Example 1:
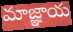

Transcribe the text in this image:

మాజ్ఞాయ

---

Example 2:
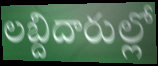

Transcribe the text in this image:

లబ్దిదారుల్లో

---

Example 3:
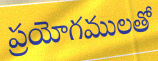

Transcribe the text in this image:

ప్రయోగములతో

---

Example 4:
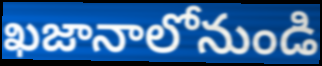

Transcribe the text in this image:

ఖజానాలోనుండి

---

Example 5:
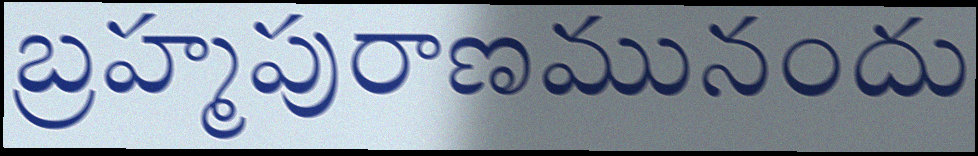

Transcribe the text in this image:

బ్రహ్మపురాణమునందు